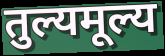
तुल्यमूल्य